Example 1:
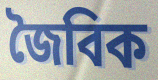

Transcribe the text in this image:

জৈবিক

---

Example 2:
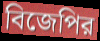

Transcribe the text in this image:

বিজেপির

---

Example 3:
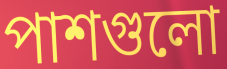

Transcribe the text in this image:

পাশগুলো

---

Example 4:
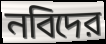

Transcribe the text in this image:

নবিদের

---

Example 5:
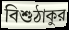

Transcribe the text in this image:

বিশুঠাকুর